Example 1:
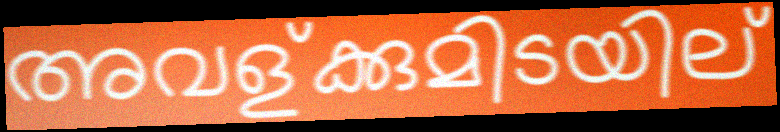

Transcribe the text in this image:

അവള്ക്കുമിടയില്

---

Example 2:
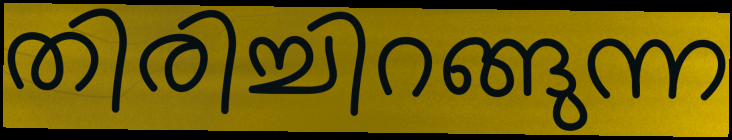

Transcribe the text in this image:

തിരിച്ചിറങ്ങുന്ന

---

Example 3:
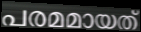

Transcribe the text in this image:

പരമമായത്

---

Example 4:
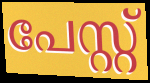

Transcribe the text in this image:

പേസ്റ്റ്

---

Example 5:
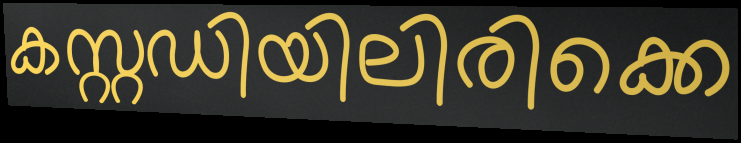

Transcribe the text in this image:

കസ്റ്റഡിയിലിരിക്കെ